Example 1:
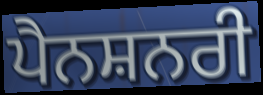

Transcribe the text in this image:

ਪੈਨਸ਼ਨਰੀ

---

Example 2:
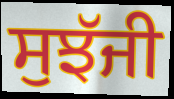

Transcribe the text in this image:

ਸੁਝੱਜੀ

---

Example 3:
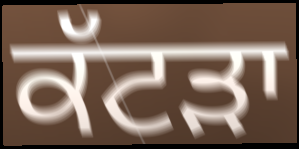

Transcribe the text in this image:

ਕੱਟੜਾ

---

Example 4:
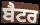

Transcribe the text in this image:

ਬੈਟਰ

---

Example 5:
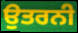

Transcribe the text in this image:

ਉਤਰਨੀ